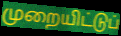
முறையிட்டுப்